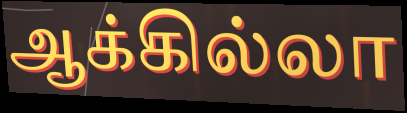
ஆக்கில்லா